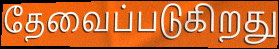
தேவைப்படுகிறது